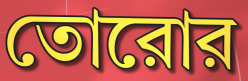
তোরোর